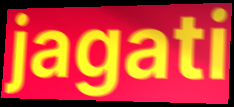
jagati